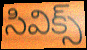
సివిక్స్